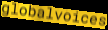
globalvoices